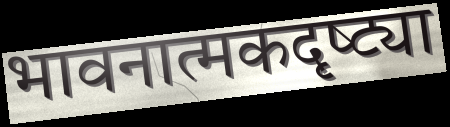
भावनात्मकदृष्ट्या